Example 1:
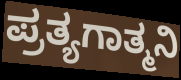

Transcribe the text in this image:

ಪ್ರತ್ಯಗಾತ್ಮನಿ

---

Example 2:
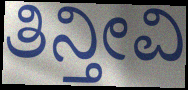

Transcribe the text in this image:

ತಿನ್ತೀವಿ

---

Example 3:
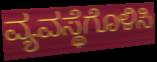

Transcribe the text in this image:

ವ್ಯವಸ್ಥೆಗೊಳಿಸಿ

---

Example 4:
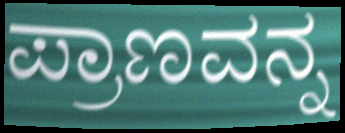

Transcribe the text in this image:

ಪ್ರಾಣವನ್ನ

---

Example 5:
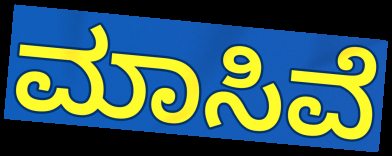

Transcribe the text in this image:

ಮಾಸಿವೆ